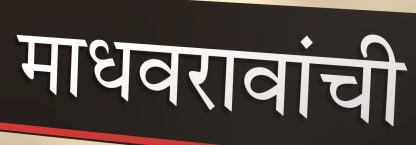
माधवरावांची